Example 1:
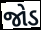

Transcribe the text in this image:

જોડ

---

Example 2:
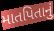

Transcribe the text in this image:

માતપિતાનું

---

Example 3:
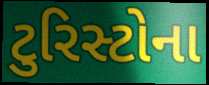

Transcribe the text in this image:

ટુરિસ્ટોના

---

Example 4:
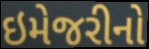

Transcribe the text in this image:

ઇમેજરીનો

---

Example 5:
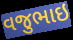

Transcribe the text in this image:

વજુભાઇ